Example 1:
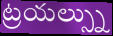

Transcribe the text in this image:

ట్రయల్స్ను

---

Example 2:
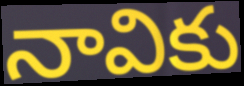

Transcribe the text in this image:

నావికు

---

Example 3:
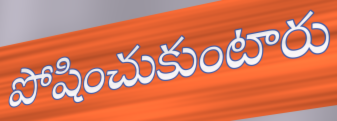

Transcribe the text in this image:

పోషించుకుంటారు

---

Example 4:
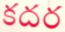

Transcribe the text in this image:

కదర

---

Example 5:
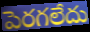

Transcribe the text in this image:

పెరగలేదు